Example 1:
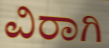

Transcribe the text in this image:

ವಿರಾಗಿ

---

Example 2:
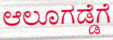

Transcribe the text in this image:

ಆಲೂಗಡ್ಡೆಗೆ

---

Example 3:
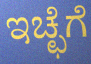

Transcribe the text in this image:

ಇಚ್ಛೆಗೆ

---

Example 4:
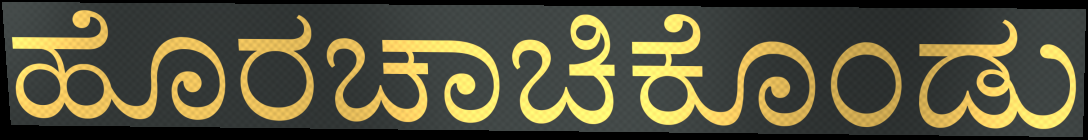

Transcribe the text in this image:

ಹೊರಚಾಚಿಕೊಂಡು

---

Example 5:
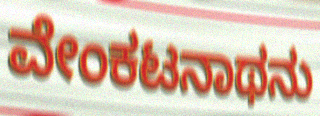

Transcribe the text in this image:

ವೇಂಕಟನಾಥನು